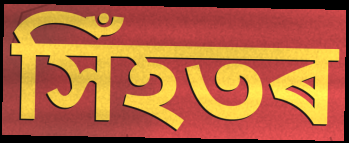
সিঁহতৰ